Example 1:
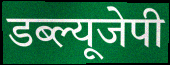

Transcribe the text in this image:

डब्ल्यूजेपी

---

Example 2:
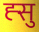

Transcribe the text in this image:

ह्सु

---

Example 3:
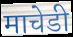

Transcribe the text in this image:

माचेडी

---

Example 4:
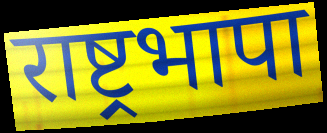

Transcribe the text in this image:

राष्ट्रभापा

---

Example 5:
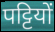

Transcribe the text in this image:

पट्टियों